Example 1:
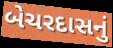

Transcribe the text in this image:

બેચરદાસનું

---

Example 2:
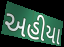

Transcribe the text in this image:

અહીયા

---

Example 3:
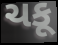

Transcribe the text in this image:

ચકૂ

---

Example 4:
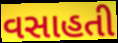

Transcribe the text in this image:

વસાહતી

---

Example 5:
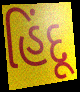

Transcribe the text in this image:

હિંદૂ